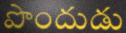
పొందుడు